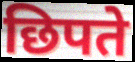
छिपते